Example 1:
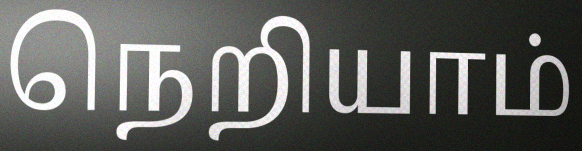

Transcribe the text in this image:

நெறியாம்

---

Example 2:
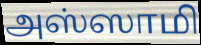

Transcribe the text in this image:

அஸ்ஸாமி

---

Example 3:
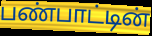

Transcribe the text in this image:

பண்பாட்டின்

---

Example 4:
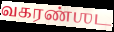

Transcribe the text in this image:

வகரண்ஶட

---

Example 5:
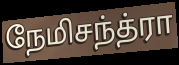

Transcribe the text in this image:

நேமிசந்த்ரா